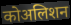
कोअलिशन